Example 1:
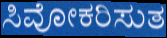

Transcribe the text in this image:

ಸಿವೋಕರಿಸುತ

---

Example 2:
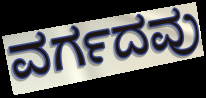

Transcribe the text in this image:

ವರ್ಗದವು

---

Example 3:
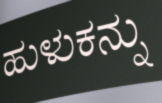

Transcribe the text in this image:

ಹುಳುಕನ್ನು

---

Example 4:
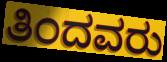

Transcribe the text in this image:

ತಿಂದವರು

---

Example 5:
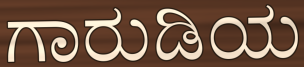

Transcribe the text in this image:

ಗಾರುಡಿಯ